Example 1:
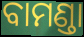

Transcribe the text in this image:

ବାମଣ୍ଡା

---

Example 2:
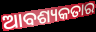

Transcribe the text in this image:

ଆବଶ୍ୟକତାର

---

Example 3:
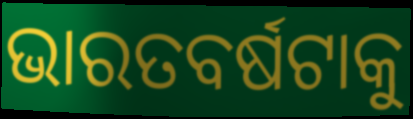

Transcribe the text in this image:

ଭାରତବର୍ଷଟାକୁ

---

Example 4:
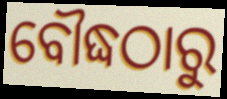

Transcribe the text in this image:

ବୌଦ୍ଧଠାରୁ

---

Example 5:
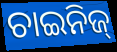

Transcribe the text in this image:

ଚାଇନିଜ୍